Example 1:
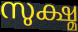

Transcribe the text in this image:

സുക്ഷ്മ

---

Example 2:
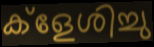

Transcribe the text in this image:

ക്ളേശിച്ചു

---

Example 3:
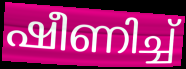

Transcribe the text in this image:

ഷീണിച്ച്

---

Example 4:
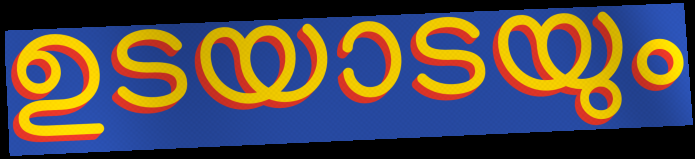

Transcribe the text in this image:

ഉടയാടയും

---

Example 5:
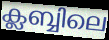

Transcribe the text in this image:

ക്ലബ്ബിലെ